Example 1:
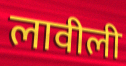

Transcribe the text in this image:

लावीली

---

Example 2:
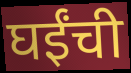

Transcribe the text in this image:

घईंची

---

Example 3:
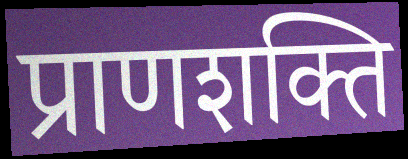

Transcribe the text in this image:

प्राणशक्ति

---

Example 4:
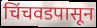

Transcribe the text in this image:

चिंचवडपासून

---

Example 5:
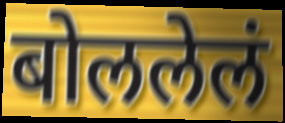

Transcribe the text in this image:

बोललेलं